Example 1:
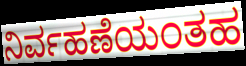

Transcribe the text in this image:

ನಿರ್ವಹಣೆಯಂತಹ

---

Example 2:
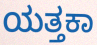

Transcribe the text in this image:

ಯತ್ತಕಾ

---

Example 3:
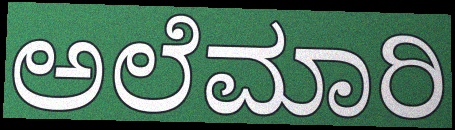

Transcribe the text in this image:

ಅಲೆಮಾರಿ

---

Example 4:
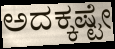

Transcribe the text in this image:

ಅದಕ್ಕಷ್ಟೇ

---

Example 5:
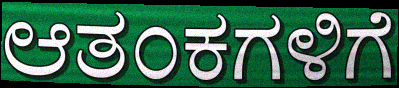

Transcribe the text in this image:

ಆತಂಕಗಳಿಗೆ